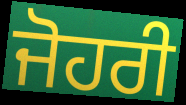
ਜੋਹਰੀ